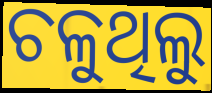
ଚଳୁଥିଲୁ